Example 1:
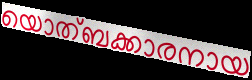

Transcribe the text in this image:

യൊത്ബക്കാരനായ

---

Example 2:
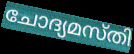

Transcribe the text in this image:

ചോദ്യമസ്തി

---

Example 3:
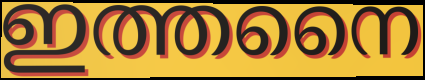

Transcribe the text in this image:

ഇത്തനൈ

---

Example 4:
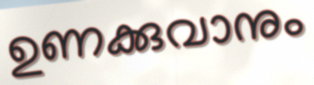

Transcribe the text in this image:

ഉണക്കുവാനും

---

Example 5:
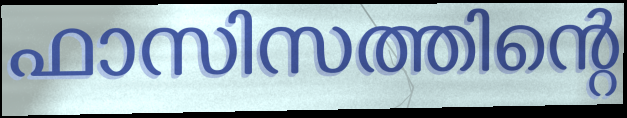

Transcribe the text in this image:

ഫാസിസത്തിന്റെ